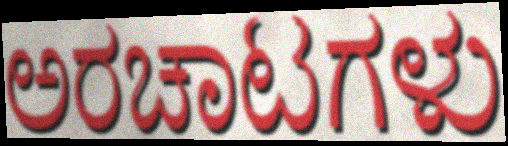
ಅರಚಾಟಗಳು